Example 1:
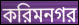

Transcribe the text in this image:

করিমনগর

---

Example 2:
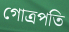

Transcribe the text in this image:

গোত্রপতি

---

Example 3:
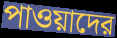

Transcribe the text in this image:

পাওয়াদের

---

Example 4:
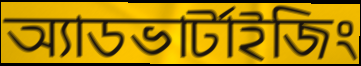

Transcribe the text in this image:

অ্যাডভার্টাইজিং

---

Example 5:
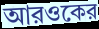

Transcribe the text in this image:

আরওকের